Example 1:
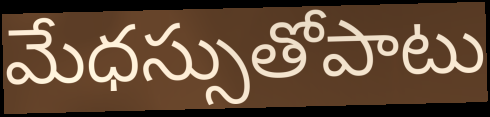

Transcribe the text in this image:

మేధస్సుతోపాటు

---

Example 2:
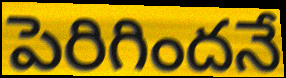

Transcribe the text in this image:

పెరిగిందనే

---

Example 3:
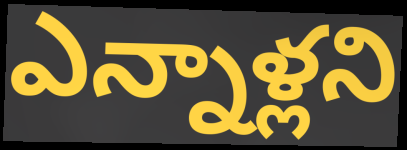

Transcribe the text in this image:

ఎన్నాళ్లని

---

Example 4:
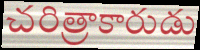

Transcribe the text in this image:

చరిత్రాకారుడు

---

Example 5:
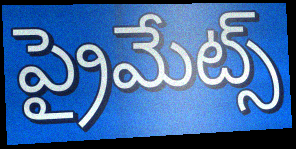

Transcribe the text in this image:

ప్రైమేట్స్